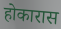
होकारास